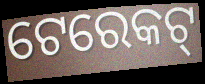
ଟେରେକଟ୍